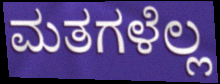
ಮತಗಳೆಲ್ಲ